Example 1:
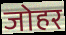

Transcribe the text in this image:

जोहर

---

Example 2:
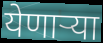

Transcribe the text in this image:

येणाऱ्या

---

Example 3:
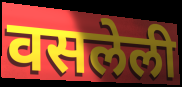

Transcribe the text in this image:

वसलेली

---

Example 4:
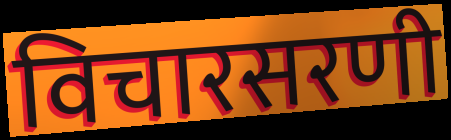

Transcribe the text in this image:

विचारसरणी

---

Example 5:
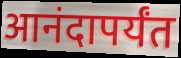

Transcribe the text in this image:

आनंदापर्यंत